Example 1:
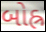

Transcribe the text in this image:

બોહ્ર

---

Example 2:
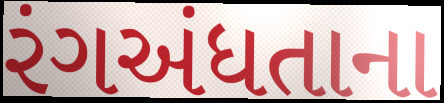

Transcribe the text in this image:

રંગઅંધતાના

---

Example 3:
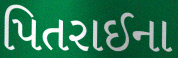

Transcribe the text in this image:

પિતરાઈના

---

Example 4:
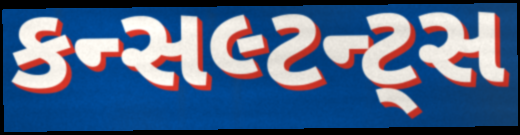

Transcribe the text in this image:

કન્સલ્ટન્ટ્સ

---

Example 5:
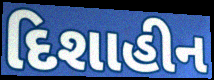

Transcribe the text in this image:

દિશાહીન